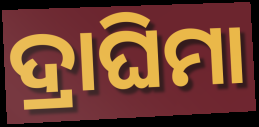
ଦ୍ରାଘିମା